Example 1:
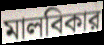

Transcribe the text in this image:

মালবিকার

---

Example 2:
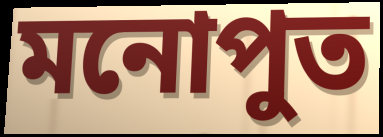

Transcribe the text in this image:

মনোপুত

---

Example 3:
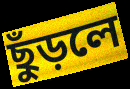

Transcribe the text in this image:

ছুঁড়লে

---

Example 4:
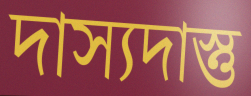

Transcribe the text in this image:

দাস্যদাস্তু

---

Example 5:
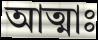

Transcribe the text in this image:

আত্মাঃ